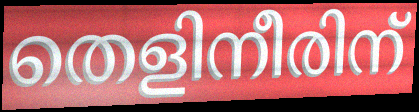
തെളിനീരിന്